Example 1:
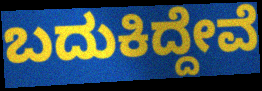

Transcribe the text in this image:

ಬದುಕಿದ್ದೇವೆ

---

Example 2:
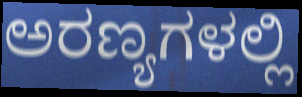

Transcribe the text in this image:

ಅರಣ್ಯಗಳಲ್ಲಿ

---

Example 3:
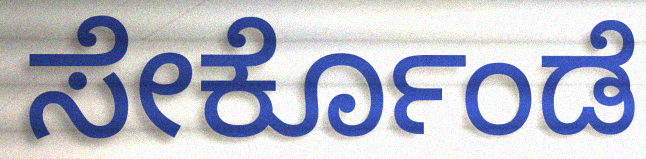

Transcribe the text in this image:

ಸೇರ್ಕೊಂಡೆ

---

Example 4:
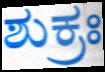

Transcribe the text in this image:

ಶುಕ್ರಃ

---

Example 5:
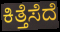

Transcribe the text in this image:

ಕಿತ್ತೆಸೆದೆ